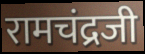
रामचंद्रजी